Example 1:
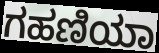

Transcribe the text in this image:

ಗಹಣಿಯಾ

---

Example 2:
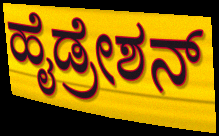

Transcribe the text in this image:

ಹೈಡ್ರೇಶನ್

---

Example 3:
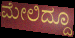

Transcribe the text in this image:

ಮೇಲಿದ್ದೂ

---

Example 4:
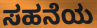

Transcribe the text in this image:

ಸಹನೆಯ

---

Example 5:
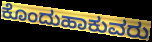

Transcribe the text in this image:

ಕೊಂದುಹಾಕುವರು